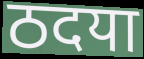
ठदया